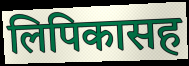
लिपिकासह